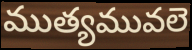
ముత్యమువలె